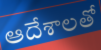
ఆదేశాలతో